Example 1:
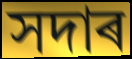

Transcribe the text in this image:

সদাৰ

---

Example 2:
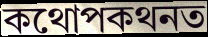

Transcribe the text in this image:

কথোপকথনত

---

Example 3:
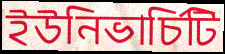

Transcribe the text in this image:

ইউনিভাৰ্চিটি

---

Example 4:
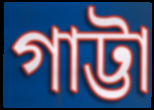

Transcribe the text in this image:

গাট্টা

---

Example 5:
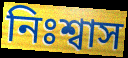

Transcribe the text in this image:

নিঃশ্বাস